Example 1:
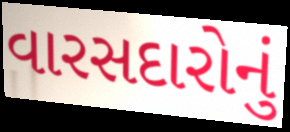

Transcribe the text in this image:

વારસદારોનું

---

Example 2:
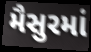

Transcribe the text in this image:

મૈસુરમાં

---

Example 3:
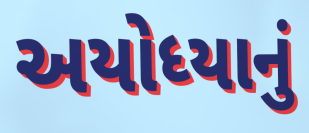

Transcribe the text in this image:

અયોધ્યાનું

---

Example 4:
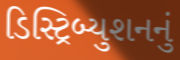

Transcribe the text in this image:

ડિસ્ટ્રિબ્યુશનનું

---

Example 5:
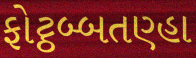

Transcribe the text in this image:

ફોટ્ઠબ્બતણ્હા